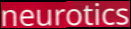
neurotics